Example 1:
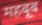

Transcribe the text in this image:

महबूब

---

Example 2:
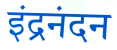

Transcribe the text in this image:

इंद्रनंदन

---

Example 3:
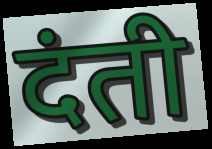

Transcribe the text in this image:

दंती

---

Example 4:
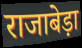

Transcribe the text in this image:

राजाबेड़ा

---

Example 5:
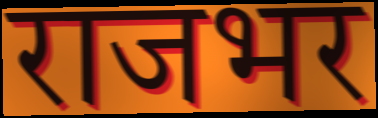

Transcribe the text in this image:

राजभर